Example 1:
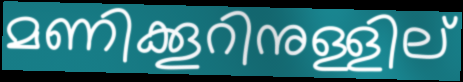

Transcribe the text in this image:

മണിക്കൂറിനുള്ളില്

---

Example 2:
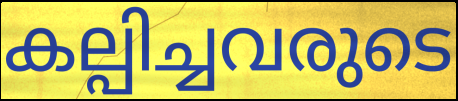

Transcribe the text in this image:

കല്പിച്ചവരുടെ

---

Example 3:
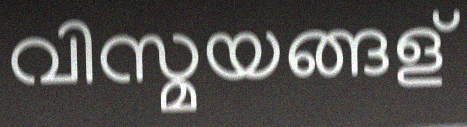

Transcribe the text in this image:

വിസ്മയങ്ങള്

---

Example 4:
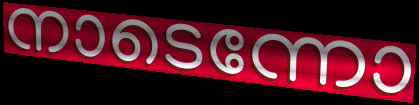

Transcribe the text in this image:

നാടെന്നോ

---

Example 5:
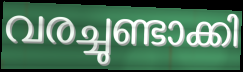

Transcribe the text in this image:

വരച്ചുണ്ടാക്കി